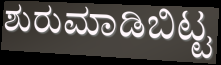
ಶುರುಮಾಡಿಬಿಟ್ಟ